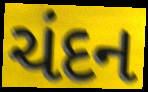
ચંદન